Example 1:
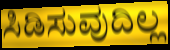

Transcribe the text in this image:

ಸಿಡಿಸುವುದಿಲ್ಲ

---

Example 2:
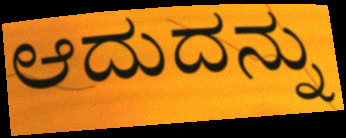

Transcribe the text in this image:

ಆದುದನ್ನು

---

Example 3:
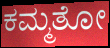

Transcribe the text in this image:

ಕಮ್ಮತೋ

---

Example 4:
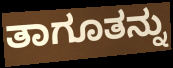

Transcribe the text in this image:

ತಾಗೂತನ್ನು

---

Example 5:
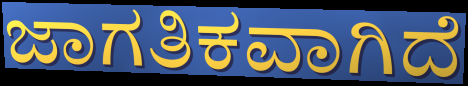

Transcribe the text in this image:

ಜಾಗತಿಕವಾಗಿದೆ